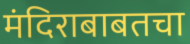
मंदिराबाबतचा